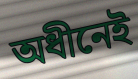
অধীনেই